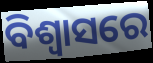
ବିଶ୍ୱାସରେ